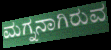
ಮಗ್ನನಾಗಿರುವ